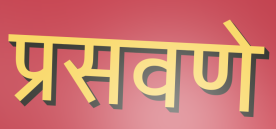
प्रसवणे